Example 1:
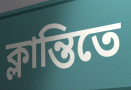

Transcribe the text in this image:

ক্লান্তিতে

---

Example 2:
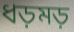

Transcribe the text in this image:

ধড়মড়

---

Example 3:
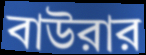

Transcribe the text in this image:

বাউরার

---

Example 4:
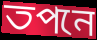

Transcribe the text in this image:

তপনে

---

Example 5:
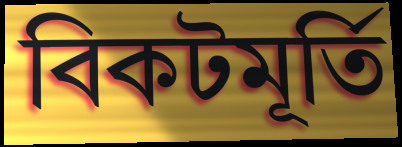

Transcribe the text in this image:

বিকটমূর্তি